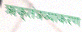
ऋक्‌तंत्रव्याकरण